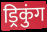
ड्रिकुंग